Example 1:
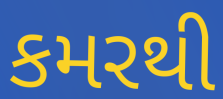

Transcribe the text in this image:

કમરથી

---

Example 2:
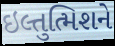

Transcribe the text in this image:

ઇલ્તુત્મિશને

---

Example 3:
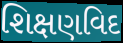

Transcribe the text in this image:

શિક્ષણવિદ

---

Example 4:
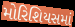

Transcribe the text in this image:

મોરિશિયસમાં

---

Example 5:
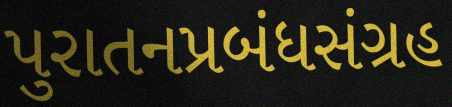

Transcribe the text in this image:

પુરાતનપ્રબંધસંગ્રહ